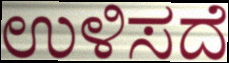
ಉಳಿಸದೆ